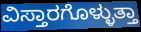
ವಿಸ್ತಾರಗೊಳ್ಳುತ್ತಾ